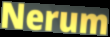
Nerum